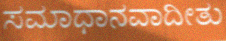
ಸಮಾಧಾನವಾದೀತು